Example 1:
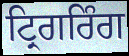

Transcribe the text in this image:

ਟ੍ਰਿਗਰਿੰਗ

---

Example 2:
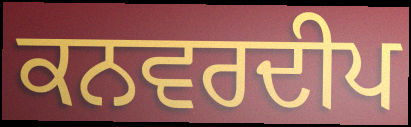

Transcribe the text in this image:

ਕਨਵਰਦੀਪ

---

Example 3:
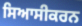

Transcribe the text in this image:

ਸਿਆਸੀਕਰਨ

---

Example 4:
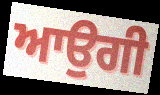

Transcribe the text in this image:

ਆਉਗੀ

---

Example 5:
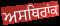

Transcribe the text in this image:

ਅਸਥਿਰਾਂਕ